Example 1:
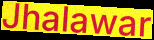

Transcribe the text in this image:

Jhalawar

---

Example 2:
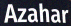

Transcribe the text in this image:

Azahar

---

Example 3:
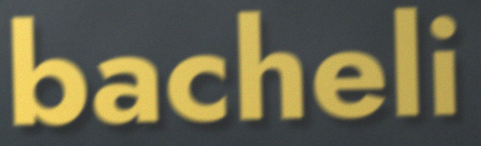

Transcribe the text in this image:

bacheli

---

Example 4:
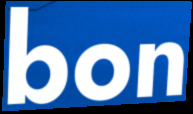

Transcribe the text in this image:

bon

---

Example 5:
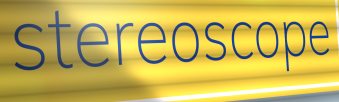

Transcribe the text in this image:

stereoscope